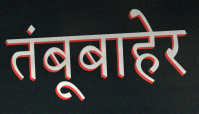
तंबूबाहेर